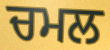
ਚਮਲ